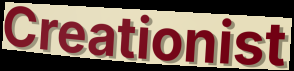
Creationist